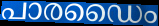
പാരഡൈം